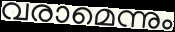
വരാമെന്നും